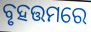
ବୃହତ୍ତମରେ